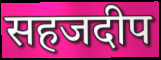
सहजदीप